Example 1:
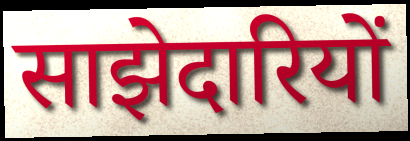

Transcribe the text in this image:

साझेदारियों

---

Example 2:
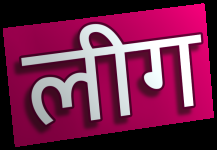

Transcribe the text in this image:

लीग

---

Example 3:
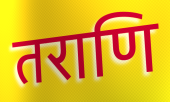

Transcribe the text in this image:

तराणि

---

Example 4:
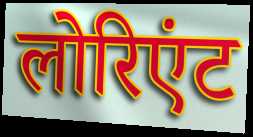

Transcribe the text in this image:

लोरिएंट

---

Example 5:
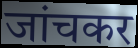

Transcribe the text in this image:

जांचकर